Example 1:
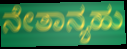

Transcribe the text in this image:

ನೇತಾನ್ಯಹು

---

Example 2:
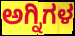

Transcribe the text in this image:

ಅಗ್ನಿಗಳ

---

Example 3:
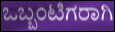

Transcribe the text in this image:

ಒಬ್ಬಂಟಿಗರಾಗಿ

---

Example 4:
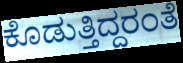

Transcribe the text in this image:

ಕೊಡುತ್ತಿದ್ದರಂತೆ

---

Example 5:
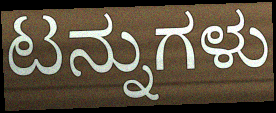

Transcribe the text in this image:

ಟನ್ನುಗಳು